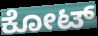
ಕೋಟ್